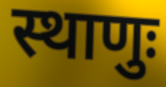
स्थाणुः